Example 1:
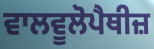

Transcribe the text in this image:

ਵਾਲਵੂਲੋਪੈਥੀਜ਼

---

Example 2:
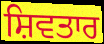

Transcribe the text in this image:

ਸ਼ਿਵਤਾਰ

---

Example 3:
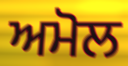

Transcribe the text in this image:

ਅਮੋਲ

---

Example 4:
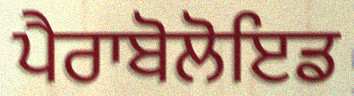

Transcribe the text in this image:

ਪੈਰਾਬੋਲੋਇਡ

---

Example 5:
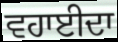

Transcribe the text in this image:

ਵਹਾਈਦਾ